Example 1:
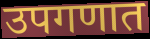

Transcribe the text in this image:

उपगणात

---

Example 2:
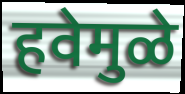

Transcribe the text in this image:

हवेमुळे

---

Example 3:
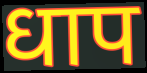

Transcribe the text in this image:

धाप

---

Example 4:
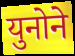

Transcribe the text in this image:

युनोने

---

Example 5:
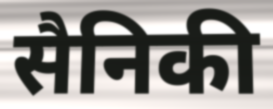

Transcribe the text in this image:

सैनिकी